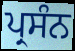
ਪ੍ਰਸੰਨ